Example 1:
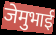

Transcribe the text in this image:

जेमुभाई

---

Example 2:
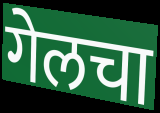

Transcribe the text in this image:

गेलचा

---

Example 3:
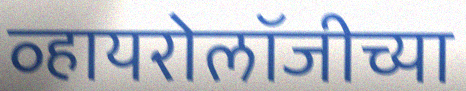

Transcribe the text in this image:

व्हायरोलॉजीच्या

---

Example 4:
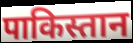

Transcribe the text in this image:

पाकिस्तान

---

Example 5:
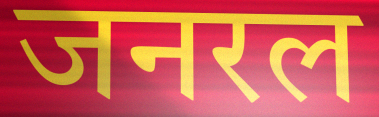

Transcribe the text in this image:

जनरल